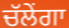
ਚੱਲੇਂਗਾ